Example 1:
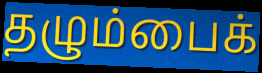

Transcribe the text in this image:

தழும்பைக்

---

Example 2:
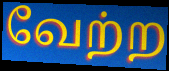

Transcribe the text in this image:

வேற்ற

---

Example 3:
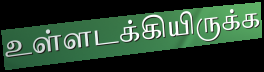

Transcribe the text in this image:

உள்ளடக்கியிருக்க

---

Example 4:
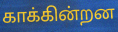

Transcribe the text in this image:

காக்கின்றன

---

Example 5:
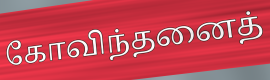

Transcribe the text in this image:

கோவிந்தனைத்